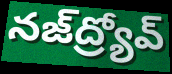
నజ్‌ద్ర్యోవ్